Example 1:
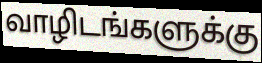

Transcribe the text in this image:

வாழிடங்களுக்கு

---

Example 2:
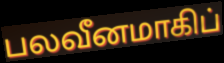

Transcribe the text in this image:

பலவீனமாகிப்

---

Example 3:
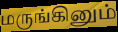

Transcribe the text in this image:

மருங்கினும்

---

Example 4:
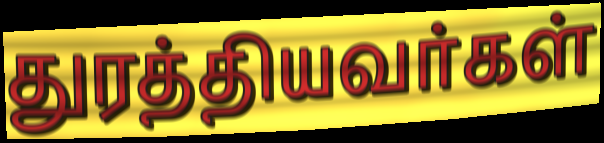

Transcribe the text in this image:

துரத்தியவர்கள்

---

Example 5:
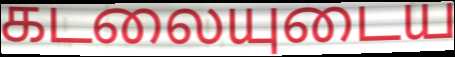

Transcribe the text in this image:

கடலையுடைய